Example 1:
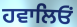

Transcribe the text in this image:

ਹਵਾਲਿਓਂ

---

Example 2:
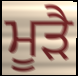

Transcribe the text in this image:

ਮੂੜੈ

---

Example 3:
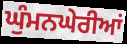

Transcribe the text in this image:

ਘੁੰਮਨਘੇਰੀਆਂ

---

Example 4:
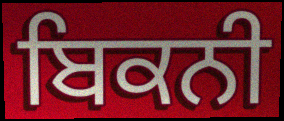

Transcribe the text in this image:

ਬਿਕਨੀ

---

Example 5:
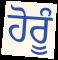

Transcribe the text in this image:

ਹੋਰੂੰ